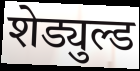
शेड्युल्ड